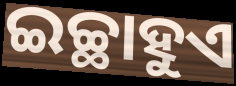
ଇଚ୍ଛାହୁଏ